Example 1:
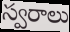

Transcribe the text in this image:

స్వరాలు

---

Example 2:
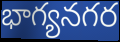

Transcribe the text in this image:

భాగ్యనగర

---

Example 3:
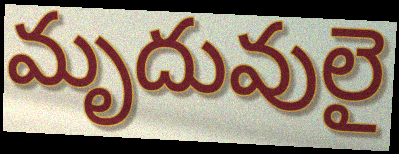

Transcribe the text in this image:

మృదువులై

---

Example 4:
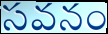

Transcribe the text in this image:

సవనం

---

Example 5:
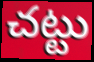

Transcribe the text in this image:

చట్టు